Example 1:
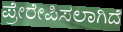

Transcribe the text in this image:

ಪ್ರೇರೇಪಿಸಲಾಗಿದೆ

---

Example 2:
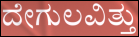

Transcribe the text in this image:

ದೇಗುಲವಿತ್ತು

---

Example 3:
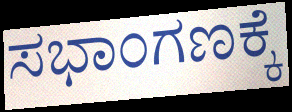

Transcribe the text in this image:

ಸಭಾಂಗಣಕ್ಕೆ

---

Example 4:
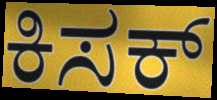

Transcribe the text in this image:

ಕಿಸಕ್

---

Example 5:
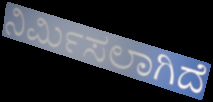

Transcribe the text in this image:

ನಿರ್ಮಿಸಲಾಗಿದೆ